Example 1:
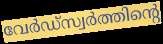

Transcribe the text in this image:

വേർഡ്സ്വർത്തിന്റെ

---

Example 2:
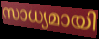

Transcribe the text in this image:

സാധ്യമായി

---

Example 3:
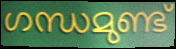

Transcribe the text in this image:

ഗന്ധമുണ്ട്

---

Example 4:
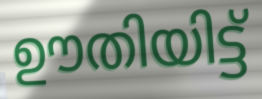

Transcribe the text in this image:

ഊതിയിട്ട്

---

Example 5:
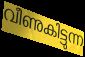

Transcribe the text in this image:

വീണുകിട്ടുന്ന